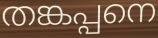
തങ്കപ്പനെ